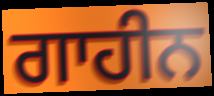
ਗਾਹੀਨ